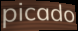
picado